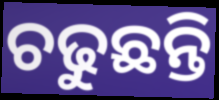
ଚଢୁଛନ୍ତି